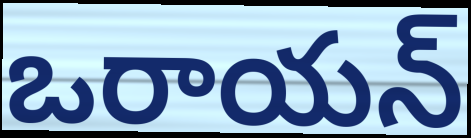
ఒరాయన్